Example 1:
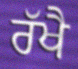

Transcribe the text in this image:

ਰੱਖੈ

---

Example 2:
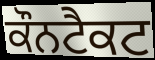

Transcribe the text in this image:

ਕੌਨਟੈਕਟ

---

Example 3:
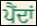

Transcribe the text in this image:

ਪੈਂਦਾਂ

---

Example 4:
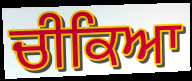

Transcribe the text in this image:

ਚੀਕਿਆ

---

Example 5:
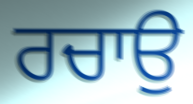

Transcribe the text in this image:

ਰਚਾਉ